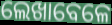
ଲେଖାବେଳେ